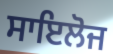
ਸਾਇਲੋਜ